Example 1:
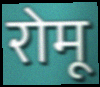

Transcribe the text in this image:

रोमू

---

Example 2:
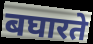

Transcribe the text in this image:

बघारते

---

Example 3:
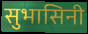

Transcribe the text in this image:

सुभासिनी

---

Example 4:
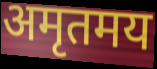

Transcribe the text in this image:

अमृतमय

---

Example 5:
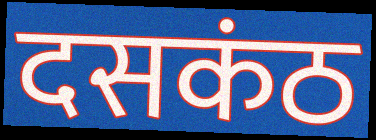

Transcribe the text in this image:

दसकंठ